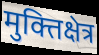
मुक्तिक्षेत्र